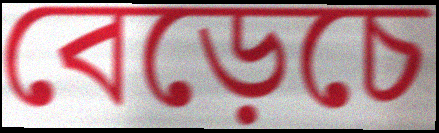
বেড়েচে